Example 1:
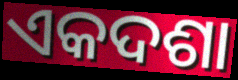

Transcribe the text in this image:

ଏକଦଶା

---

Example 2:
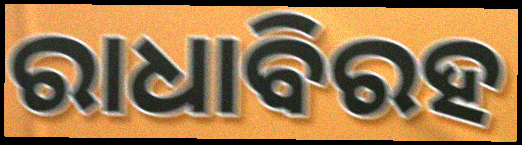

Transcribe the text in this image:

ରାଧାବିରହ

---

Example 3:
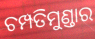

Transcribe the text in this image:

ଚମ୍ପତିମୁଣ୍ଡାର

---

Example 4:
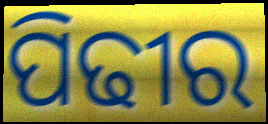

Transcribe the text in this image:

ପିଢୀର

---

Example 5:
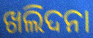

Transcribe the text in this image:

ଖଲିଦନା